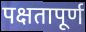
पक्षतापूर्ण